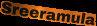
Sreeramula